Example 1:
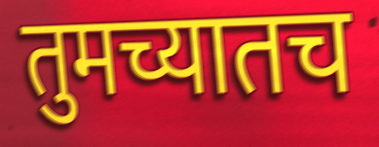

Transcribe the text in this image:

तुमच्यातच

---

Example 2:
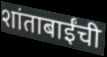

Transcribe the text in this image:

शांताबाईंची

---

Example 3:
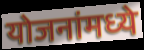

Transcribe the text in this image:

योजनांमध्ये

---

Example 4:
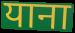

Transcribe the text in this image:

याना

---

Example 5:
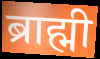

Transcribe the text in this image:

ब्राह्मी